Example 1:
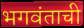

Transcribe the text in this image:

भगवंताची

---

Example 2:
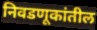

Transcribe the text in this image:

निवडणूकांतील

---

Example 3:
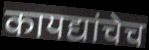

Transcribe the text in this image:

कायद्यांचेच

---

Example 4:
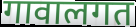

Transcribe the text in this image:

गावालगत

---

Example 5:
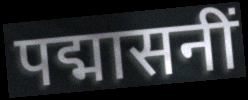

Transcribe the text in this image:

पद्मासनीं